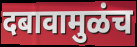
दबावामुळंच